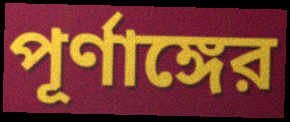
পূর্ণাঙ্গের